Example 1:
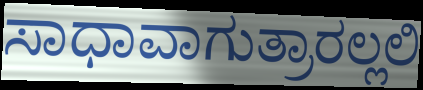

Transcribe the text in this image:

ಸಾಧಾವಾಗುತ್ರಾರಲ್ಲಲಿ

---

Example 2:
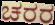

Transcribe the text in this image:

ಚರರ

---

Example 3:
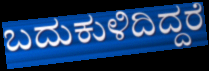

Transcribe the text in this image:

ಬದುಕುಳಿದಿದ್ದರೆ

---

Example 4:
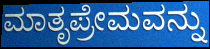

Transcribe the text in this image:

ಮಾತೃಪ್ರೇಮವನ್ನು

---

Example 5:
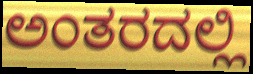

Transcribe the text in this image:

ಅಂತರದಲ್ಲಿ